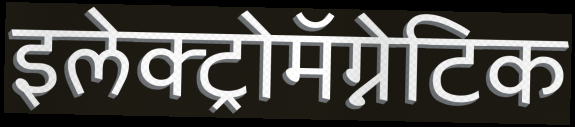
इलेक्ट्रोमॅग्नेटिक